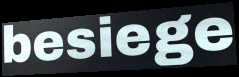
besiege